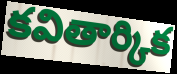
కవితార్కిక